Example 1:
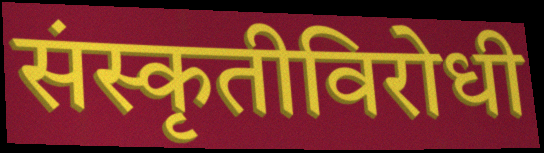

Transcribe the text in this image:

संस्कृतीविरोधी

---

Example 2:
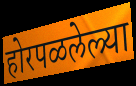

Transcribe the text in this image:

होरपळलेल्या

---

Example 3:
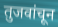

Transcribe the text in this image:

तुजवांचून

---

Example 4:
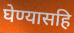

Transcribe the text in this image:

घेण्यासहि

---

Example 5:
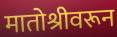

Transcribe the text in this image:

मातोश्रीवरून